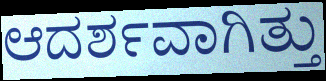
ಆದರ್ಶವಾಗಿತ್ತು